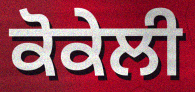
ਕੋਕੇਲੀ